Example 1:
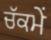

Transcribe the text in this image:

ਚੱਕਮੇਂ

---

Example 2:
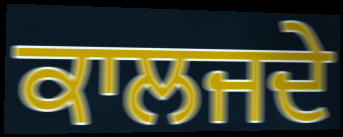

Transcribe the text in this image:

ਕਾਲਜਦੇ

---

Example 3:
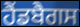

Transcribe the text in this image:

ਹੈਂਡਬੈਗਸ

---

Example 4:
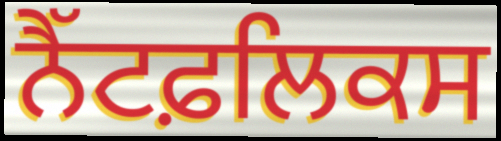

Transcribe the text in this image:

ਨੈੱਟਫ਼ਲਿਕਸ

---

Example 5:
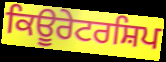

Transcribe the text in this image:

ਕਿਊਰੇਟਰਸ਼ਿਪ